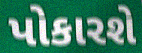
પોકારશે